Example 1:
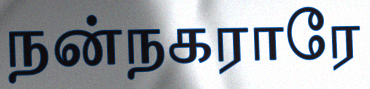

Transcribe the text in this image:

நன்நகராரே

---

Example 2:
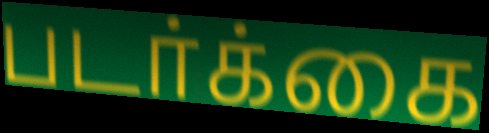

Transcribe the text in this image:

படர்க்கை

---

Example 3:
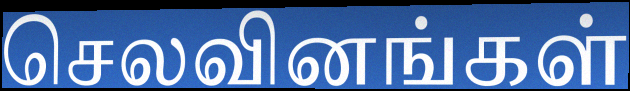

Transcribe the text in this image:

செலவினங்கள்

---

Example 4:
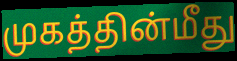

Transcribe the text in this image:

முகத்தின்மீது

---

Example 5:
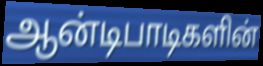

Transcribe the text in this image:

ஆன்டிபாடிகளின்